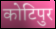
कोटिपुर